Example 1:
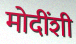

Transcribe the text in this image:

मोदींशी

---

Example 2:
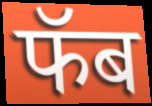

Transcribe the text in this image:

फॅब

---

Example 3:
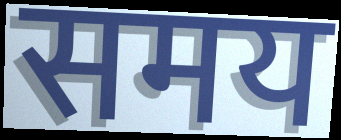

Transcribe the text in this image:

समय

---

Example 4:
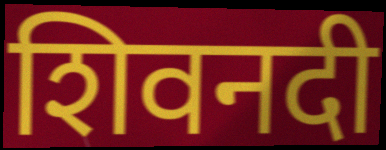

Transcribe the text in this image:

शिवनदी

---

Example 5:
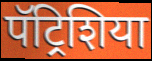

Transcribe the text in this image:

पॅट्रिशिया